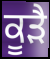
ਕੂੜੈ